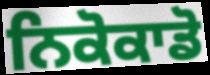
ਨਿਕੋਕਾਡੋ